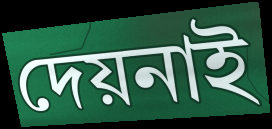
দেয়নাই